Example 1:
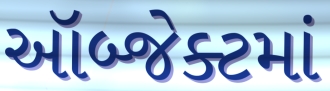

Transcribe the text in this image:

ઑબ્જેક્ટમાં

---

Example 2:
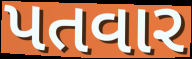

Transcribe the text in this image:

પતવાર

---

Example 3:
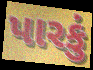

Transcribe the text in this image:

પારકું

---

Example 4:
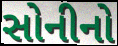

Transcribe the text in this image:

સોનીનો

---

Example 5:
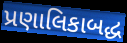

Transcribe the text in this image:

પ્રણાલિકાબદ્ધ